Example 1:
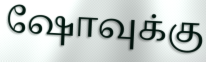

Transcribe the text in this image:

ஷோவுக்கு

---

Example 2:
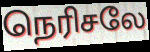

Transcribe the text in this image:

நெரிசலே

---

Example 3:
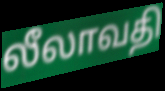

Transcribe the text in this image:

லீலாவதி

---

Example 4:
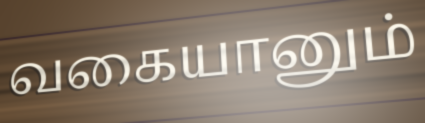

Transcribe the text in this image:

வகையானும்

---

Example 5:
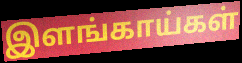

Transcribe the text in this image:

இளங்காய்கள்